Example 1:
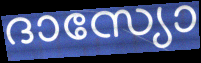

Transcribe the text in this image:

ദാസ്യോ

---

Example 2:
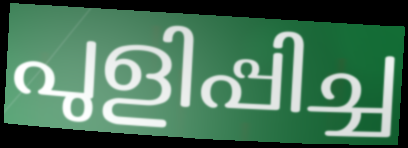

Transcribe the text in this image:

പുളിപ്പിച്ച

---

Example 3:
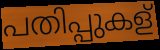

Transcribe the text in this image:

പതിപ്പുകള്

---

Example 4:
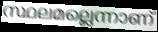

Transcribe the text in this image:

സ്ഥലമല്ലെന്നാണ്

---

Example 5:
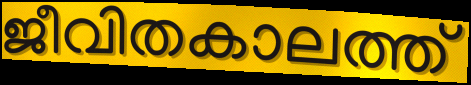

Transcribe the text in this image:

ജീവിതകാലത്ത്